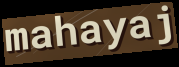
mahayaj